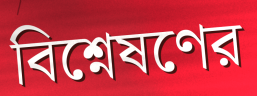
বিশ্নেষণের